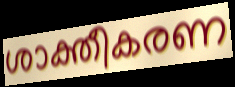
ശാക്തീകരണ